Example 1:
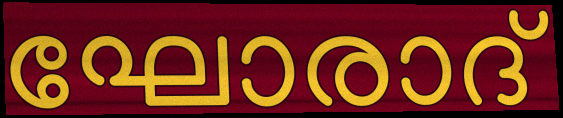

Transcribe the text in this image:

ഘോരാദ്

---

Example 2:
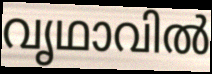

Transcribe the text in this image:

വൃഥാവിൽ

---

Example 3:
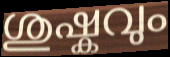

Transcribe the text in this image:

ശുഷ്കവും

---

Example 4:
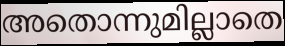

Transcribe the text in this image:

അതൊന്നുമില്ലാതെ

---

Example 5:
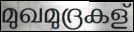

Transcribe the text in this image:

മുഖമുദ്രകള്